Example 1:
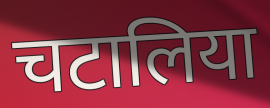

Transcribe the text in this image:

चटालिया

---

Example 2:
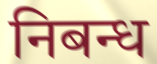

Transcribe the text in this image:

निबन्‍ध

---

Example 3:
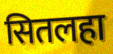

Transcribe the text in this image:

सितलहा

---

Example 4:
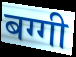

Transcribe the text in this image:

बग्‍गी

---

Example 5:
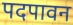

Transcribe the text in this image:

पदपावन